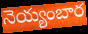
నెయ్యంబార